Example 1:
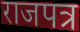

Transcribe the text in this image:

राजपत्र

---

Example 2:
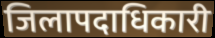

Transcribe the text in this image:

जिलापदाधिकारी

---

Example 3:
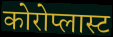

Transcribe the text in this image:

कोरोप्लास्ट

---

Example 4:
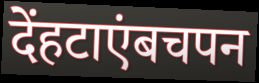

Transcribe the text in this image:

देंहटाएंबचपन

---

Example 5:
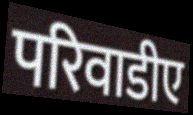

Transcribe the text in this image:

परिवाडीए